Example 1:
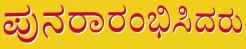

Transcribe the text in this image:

ಪುನರಾರಂಭಿಸಿದರು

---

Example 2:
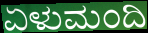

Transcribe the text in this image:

ಏಳುಮಂದಿ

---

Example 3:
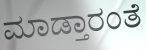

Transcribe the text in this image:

ಮಾಡ್ತಾರಂತೆ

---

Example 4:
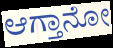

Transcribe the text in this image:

ಆಗ್ತಾನೋ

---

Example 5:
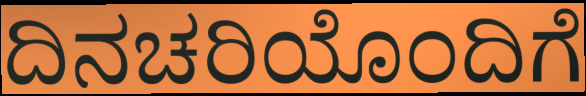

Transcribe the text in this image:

ದಿನಚರಿಯೊಂದಿಗೆ